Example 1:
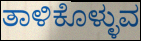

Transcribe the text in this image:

ತಾಳಿಕೊಳ್ಳುವ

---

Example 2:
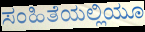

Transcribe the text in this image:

ಸಂಹಿತೆಯಲ್ಲಿಯೂ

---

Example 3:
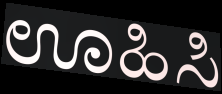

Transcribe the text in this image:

ಊಹಿಸಿ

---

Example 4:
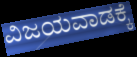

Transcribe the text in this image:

ವಿಜಯವಾಡಕ್ಕೆ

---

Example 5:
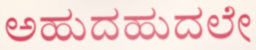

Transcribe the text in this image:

ಅಹುದಹುದಲೇ